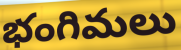
భంగిమలు